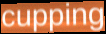
cupping